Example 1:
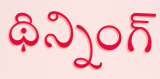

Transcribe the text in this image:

థిన్నింగ్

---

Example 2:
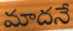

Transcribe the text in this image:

మాదనే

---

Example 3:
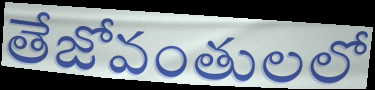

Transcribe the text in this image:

తేజోవంతులలో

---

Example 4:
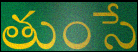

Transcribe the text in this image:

తుంసే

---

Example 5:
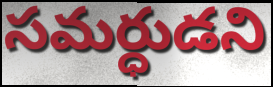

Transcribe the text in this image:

సమర్ధుడని